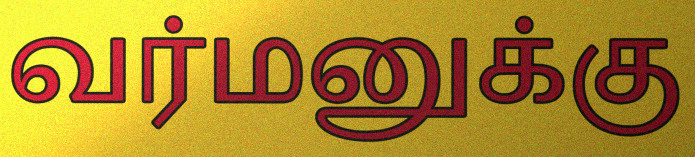
வர்மனுக்கு